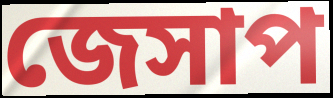
জেসাপ